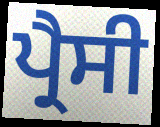
ਪ੍ਰੈਸੀ